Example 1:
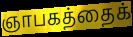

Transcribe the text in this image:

ஞாபகத்தைக்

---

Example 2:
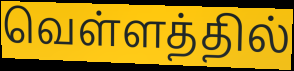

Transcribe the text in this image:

வெள்ளத்தில்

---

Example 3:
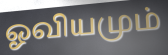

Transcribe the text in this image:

ஓவியமும்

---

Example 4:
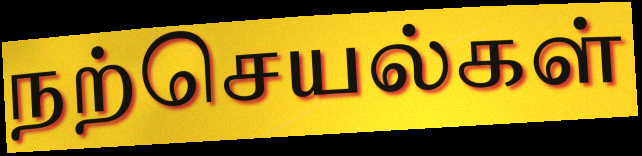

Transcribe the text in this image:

நற்செயல்கள்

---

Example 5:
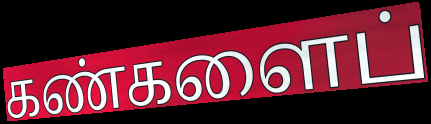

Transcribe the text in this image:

கண்களைப்